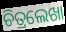
ଚିତ୍ରଲେଖା